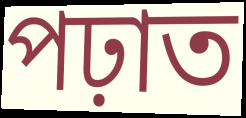
পঢ়াত